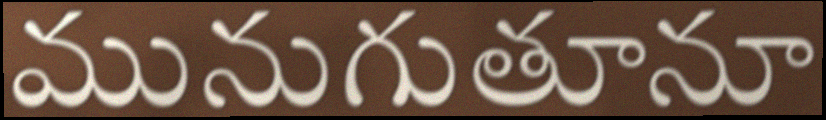
మునుగుతూనూ